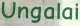
Ungalai